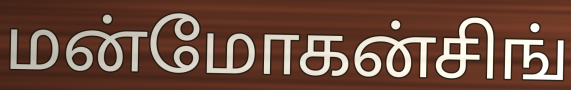
மன்மோகன்சிங்